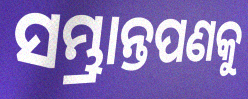
ସମ୍ଭ୍ରାନ୍ତପଣକୁ